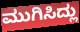
ಮುಗಿಸಿದ್ಲು